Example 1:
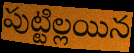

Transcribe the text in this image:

పుట్టిల్లయిన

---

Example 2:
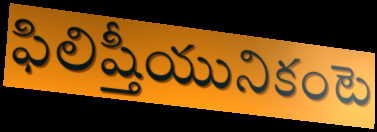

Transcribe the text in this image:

ఫిలిష్తీయునికంటె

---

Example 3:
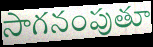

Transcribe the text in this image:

సాగనంపుతూ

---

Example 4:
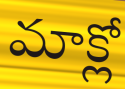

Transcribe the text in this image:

మాక్లో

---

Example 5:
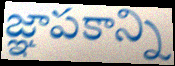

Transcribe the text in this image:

జ్ఞాపకాన్ని